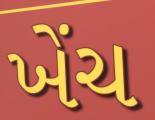
ખેંચ